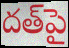
దత్‌పై